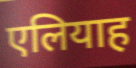
एलियाह